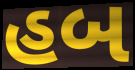
હબ